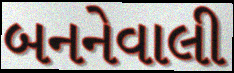
બનનેવાલી